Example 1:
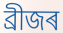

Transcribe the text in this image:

ব্ৰীজৰ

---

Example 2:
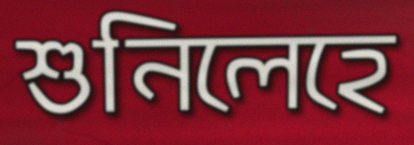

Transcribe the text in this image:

শুনিলেহে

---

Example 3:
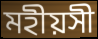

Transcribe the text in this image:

মহীয়সী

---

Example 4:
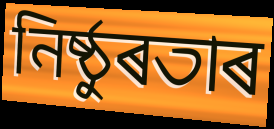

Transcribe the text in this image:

নিষ্ঠুৰতাৰ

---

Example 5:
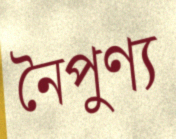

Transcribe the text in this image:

নৈপুণ্য